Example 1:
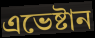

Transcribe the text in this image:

এভেষ্টান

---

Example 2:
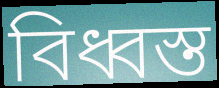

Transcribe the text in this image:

বিধ্বস্ত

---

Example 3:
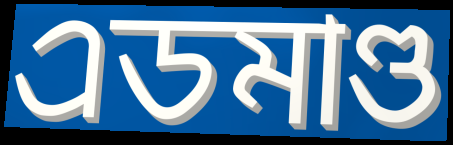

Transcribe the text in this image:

এডমাণ্ড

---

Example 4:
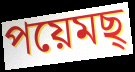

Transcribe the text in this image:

পয়েমছ্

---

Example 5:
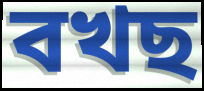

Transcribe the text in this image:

বখছ